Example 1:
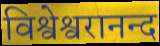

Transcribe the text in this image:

विश्वेश्वरानन्द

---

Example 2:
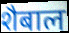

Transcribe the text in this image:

शैबाल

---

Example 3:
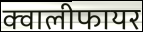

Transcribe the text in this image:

क्‍वालीफायर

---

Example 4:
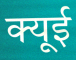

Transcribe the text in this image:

क्यूई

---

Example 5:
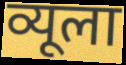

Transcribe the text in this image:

व्यूला